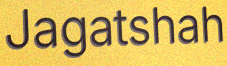
Jagatshah